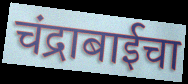
चंद्राबाईचा